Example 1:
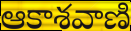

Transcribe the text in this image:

ఆకాశవాణి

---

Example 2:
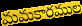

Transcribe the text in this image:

మమకారముల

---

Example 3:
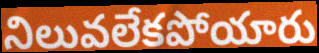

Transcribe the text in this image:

నిలువలేకపోయారు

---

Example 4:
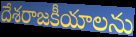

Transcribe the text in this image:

దేశరాజకీయాలను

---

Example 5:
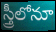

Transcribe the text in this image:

స్త్రీలోనూ